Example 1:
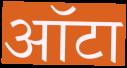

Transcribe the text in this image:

ऑटा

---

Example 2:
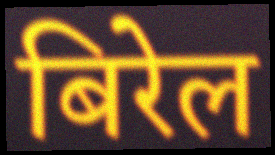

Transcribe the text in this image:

बिरेल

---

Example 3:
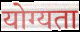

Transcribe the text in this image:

योग्‍यता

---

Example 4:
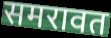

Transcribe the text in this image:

समरावत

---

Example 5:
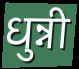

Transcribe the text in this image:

धुन्नी